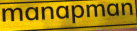
manapman